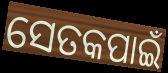
ସେତକପାଇଁ